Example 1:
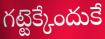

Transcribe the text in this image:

గట్టెక్కేందుకే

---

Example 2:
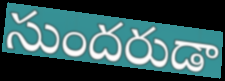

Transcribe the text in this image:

సుందరుడా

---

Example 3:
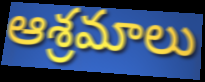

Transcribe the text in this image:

ఆశ్రమాలు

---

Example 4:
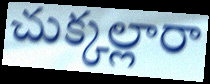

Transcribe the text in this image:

చుక్కల్లారా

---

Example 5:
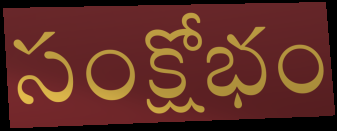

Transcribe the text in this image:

సంక్షోభం